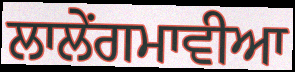
ਲਾਲੇਂਗਮਾਵੀਆ